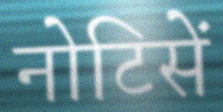
नोटिसें